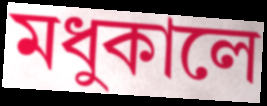
মধুকালে